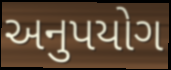
અનુપયોગ